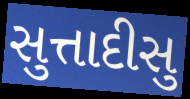
સુત્તાદીસુ